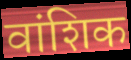
वांशिक